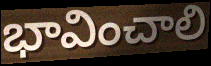
భావించాలి